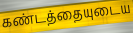
கண்டத்தையுடைய